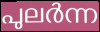
പുലർന്ന